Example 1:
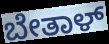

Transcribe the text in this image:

ಬೇತಾಳ್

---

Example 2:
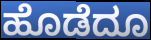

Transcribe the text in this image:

ಹೊಡೆದೂ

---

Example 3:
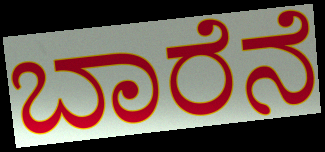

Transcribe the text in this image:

ಬಾರೆನೆ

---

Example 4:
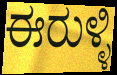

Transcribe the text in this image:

ಈರುಳ್ಳಿ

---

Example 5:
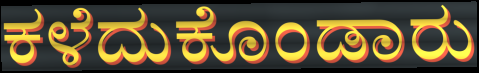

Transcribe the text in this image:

ಕಳೆದುಕೊಂಡಾರು